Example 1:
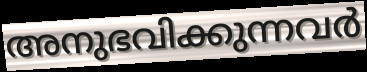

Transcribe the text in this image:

അനുഭവിക്കുന്നവർ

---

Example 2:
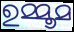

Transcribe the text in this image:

ഉമ്മൂമ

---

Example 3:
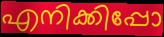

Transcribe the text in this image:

എനിക്കിപ്പോ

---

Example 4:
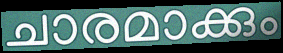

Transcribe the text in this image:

ചാരമാക്കും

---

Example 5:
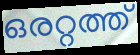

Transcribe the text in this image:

ഒരറ്റത്ത്